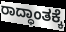
ರಾದ್ಧಾಂತಕ್ಕೆ